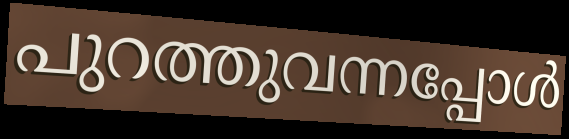
പുറത്തുവന്നപ്പോൾ